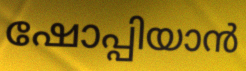
ഷോപ്പിയാൻ